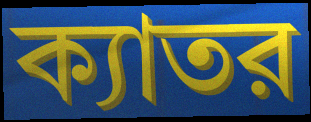
ক্যাতর